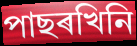
পাছৰখিনি